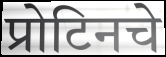
प्रोटिनचे